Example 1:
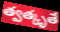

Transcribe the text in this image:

త్వత్కృతే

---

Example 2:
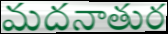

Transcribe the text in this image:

మదనాతుర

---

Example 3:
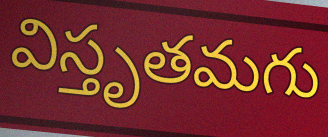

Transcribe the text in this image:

విస్తృతమగు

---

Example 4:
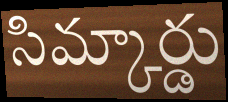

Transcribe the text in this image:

సిమ్కార్డు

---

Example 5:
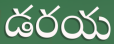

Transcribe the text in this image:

డరయ